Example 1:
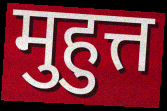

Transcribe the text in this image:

मुहुत्त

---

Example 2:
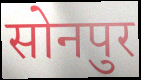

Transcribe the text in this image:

सोनपुर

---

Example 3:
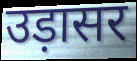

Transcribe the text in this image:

उड़ासर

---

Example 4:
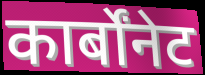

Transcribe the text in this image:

कार्बोंनेट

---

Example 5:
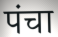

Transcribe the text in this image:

पंचा